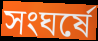
সংঘর্ষে